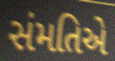
સંમતિએ